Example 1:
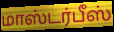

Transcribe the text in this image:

மாஸ்டர்பீஸ்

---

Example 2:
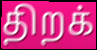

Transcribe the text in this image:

திறக்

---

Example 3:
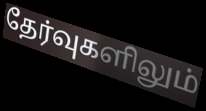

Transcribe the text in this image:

தேர்வுகளிலும்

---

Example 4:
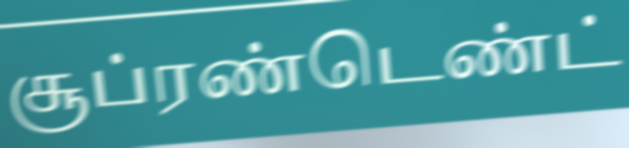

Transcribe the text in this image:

சூப்ரண்டெண்ட்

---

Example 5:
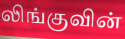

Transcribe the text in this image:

லிங்குவின்